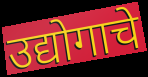
उद्योगाचे